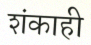
शंकाही